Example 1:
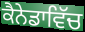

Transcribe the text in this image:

ਕੈਨੇਡਾਵਿੱਚ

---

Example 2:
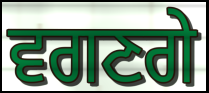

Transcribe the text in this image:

ਵਗਣਗੇ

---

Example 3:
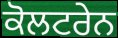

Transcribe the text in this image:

ਕੋਲਟਰੇਨ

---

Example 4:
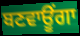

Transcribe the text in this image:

ਬਣਵਾਊਂਗਾ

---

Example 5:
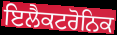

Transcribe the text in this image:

ਇਲੈਕਟਰੋਨਿਕ